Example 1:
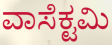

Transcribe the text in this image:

ವಾಸೆಕ್ಟಮಿ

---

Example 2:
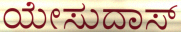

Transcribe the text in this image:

ಯೇಸುದಾಸ್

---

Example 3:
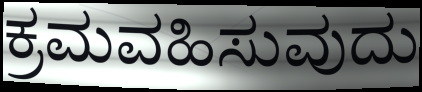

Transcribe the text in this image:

ಕ್ರಮವಹಿಸುವುದು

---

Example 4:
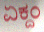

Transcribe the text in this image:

ಏಕ್ದಂ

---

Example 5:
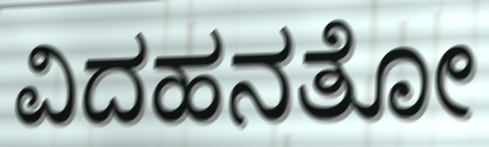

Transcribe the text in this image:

ವಿದಹನತೋ